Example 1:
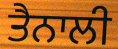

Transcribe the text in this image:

ਤੈਨਾਲੀ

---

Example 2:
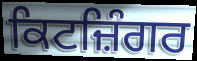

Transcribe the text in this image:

ਕਿਟਜ਼ਿੰਗਰ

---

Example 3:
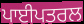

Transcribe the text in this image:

ਪਾਈਪਤਰਲ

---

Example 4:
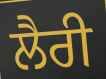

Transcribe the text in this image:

ਲੈਰੀ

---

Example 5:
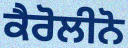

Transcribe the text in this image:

ਕੈਰੋਲੀਨੋ